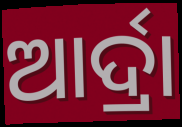
ଆର୍ଦ୍ରା